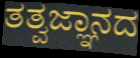
ತತ್ವಜ್ಞಾನದ